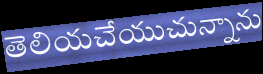
తెలియచేయుచున్నాను